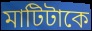
মাটিটাকে